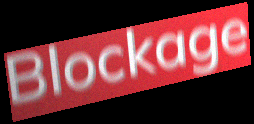
Blockage